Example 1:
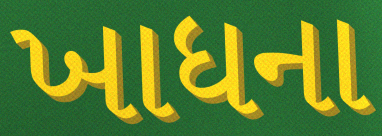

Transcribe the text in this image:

ખાધના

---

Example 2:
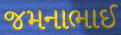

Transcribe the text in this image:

જમનાભાઈ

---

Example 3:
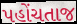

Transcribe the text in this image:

પહોંચતાજ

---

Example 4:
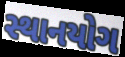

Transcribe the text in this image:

સ્થાનયોગ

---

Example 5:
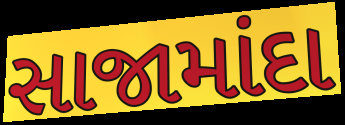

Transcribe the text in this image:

સાજામાંદા